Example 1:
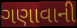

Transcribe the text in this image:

ગણાવાની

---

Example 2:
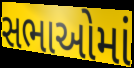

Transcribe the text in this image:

સભાઓમાં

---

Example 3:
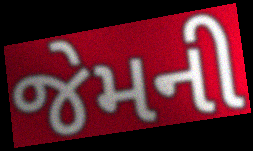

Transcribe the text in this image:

જેમની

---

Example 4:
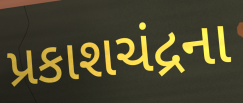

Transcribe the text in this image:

પ્રકાશચંદ્રના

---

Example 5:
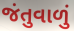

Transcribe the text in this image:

જંતુવાળું